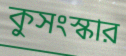
কুসংস্কার